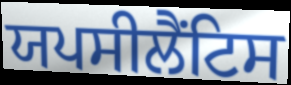
ਯਪਸੀਲੈਂਟਿਸ